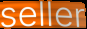
seller